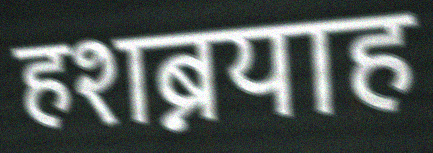
हशब्नयाह